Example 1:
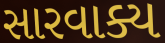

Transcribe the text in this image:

સારવાક્ય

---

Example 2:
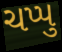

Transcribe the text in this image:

ચપ્પુ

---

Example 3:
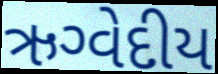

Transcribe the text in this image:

ઋગ્વેદીય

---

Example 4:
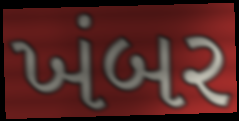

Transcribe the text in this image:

ખંબર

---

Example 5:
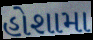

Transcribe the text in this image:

હોશામા